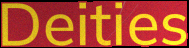
Deities